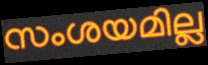
സംശയമില്ല